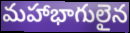
మహాభాగులైన